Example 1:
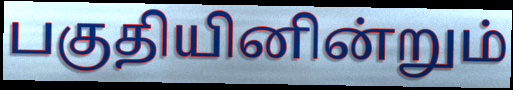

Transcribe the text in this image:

பகுதியினின்றும்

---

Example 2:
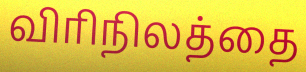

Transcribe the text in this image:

விரிநிலத்தை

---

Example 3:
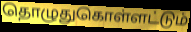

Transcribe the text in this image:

தொழுதுகொள்ளட்டும்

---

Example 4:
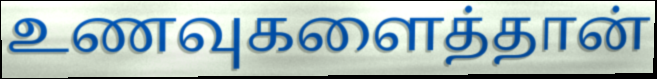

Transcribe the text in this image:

உணவுகளைத்தான்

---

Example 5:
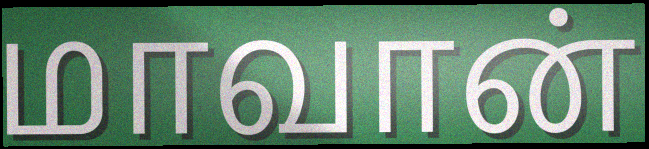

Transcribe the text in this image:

மாவான்